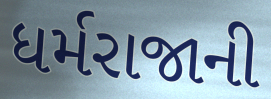
ધર્મરાજાની